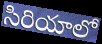
సిరియాలో